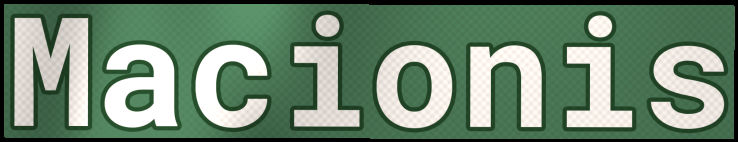
Macionis